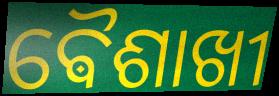
ଵୈଶାଖୀ